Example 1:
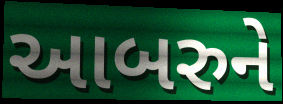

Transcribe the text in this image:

આબરુને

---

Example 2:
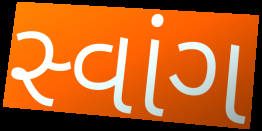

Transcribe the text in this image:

સ્વાંગ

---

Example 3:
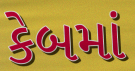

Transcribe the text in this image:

કેબમાં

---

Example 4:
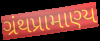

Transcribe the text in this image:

ગ્રંથપ્રામાણ્ય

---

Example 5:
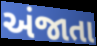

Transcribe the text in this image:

અંજાતા